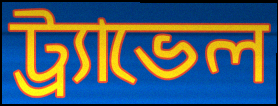
ট্র্যাভেল